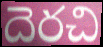
దెరచి